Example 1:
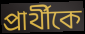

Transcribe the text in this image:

প্রার্থীকে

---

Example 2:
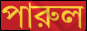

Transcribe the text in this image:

পারুল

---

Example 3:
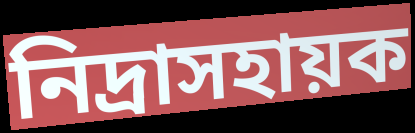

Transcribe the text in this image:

নিদ্রাসহায়ক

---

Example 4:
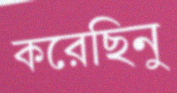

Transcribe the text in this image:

করেছিনু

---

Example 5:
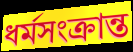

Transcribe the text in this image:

ধর্মসংক্রান্ত